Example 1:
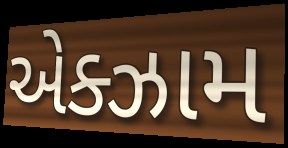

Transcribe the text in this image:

એક્ઝામ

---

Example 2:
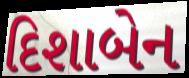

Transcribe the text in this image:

દિશાબેન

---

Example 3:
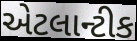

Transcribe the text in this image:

એટલાન્ટીક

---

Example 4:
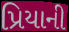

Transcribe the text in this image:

પ્રિયાની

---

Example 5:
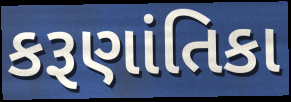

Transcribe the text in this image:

કરૂણાંતિકા